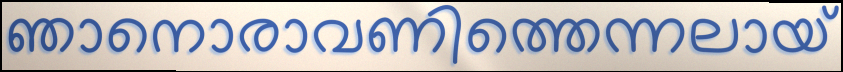
ഞാനൊരാവണിത്തെന്നലായ്